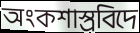
অংকশাস্ত্ৰবিদে